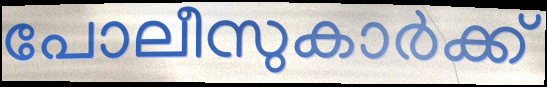
പോലീസുകാർക്ക്